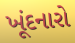
ખૂંદનારો